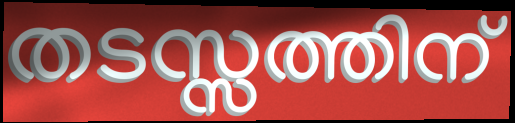
തടസ്സത്തിന്